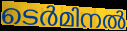
ടെർമിനൽ